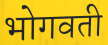
भोगवती